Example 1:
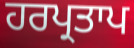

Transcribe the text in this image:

ਹਰਪ੍ਰਤਾਪ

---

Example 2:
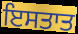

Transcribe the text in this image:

ਇਸਤਾਤ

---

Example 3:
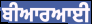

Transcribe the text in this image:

ਬੀਆਰਆਈ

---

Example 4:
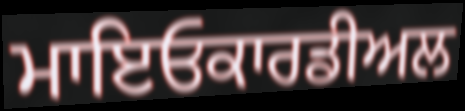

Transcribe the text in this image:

ਮਾਇਓਕਾਰਡੀਅਲ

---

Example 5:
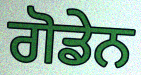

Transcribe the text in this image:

ਗੋਡੇਨ